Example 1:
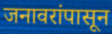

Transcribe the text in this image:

जनावरांपासून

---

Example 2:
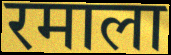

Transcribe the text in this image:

रमाला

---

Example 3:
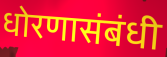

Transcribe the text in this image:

धोरणासंबंधी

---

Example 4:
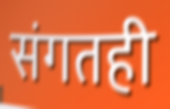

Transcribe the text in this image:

संगतही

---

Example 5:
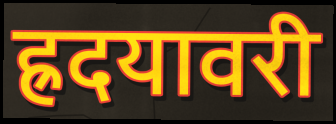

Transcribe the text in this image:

ह्रदयावरी